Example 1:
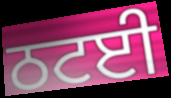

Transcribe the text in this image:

ਠਟਈ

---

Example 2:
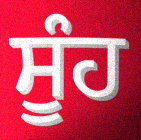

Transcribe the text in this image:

ਸੂੰਹ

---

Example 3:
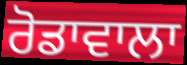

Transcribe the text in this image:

ਰੋਡਾਵਾਲਾ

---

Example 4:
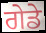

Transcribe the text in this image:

ਗੇਡੇ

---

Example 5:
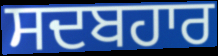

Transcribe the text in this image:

ਸਦਬਹਾਰ